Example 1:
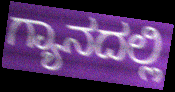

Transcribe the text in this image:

ಗ್ಯಾನದಲ್ಲಿ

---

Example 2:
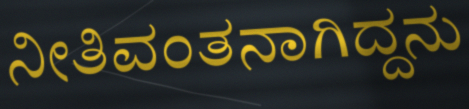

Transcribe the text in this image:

ನೀತಿವಂತನಾಗಿದ್ದನು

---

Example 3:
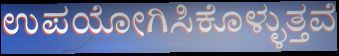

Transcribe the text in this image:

ಉಪಯೋಗಿಸಿಕೊಳ್ಳುತ್ತವೆ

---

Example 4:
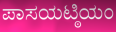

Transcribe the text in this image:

ಪಾಸಯಟ್ಠಿಯಂ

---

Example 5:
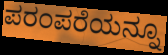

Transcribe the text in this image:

ಪರಂಪರೆಯನ್ನೂ